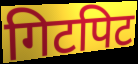
गिटपिट